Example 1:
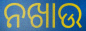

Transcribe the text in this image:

ନଖାଉ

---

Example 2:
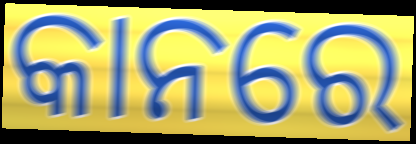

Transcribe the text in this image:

କାନରେ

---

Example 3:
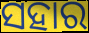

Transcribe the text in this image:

ସହାର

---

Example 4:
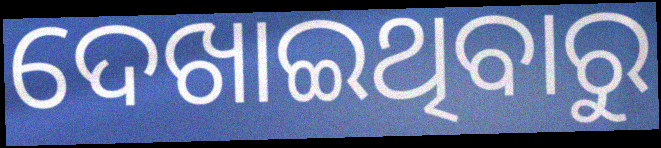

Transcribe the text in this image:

ଦେଖାଇଥିବାରୁ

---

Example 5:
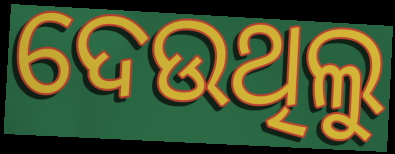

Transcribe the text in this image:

ଦେଉଥିଲୁ